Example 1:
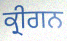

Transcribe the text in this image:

ਕ੍ਰੀਗਨ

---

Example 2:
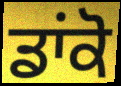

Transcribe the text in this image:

ਡਾਂਕੋ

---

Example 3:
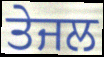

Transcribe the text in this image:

ਤੇਜਲ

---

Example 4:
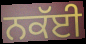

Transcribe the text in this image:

ਨਕੱਈ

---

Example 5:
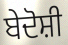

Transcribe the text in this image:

ਬੇਦੋਸ਼ੀ